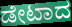
ಡೇಟಾದ